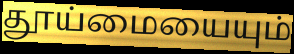
தூய்மையையும்